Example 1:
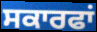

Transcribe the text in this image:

ਸਕਾਰਫਾਂ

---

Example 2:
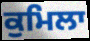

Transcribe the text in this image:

ਕੁਮਿਲਾ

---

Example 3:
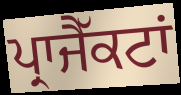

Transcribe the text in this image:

ਪ੍ਰਾਜੈੱਕਟਾਂ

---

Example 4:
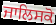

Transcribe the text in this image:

ਜਾਲਿਸਕੋ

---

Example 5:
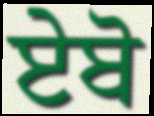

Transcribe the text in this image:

ਏਬੋ